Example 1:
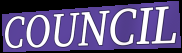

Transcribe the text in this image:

COUNCIL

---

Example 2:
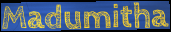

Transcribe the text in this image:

Madumitha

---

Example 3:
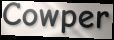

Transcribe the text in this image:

Cowper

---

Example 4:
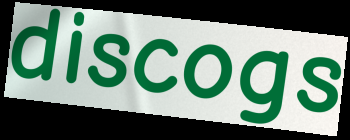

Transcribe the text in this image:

discogs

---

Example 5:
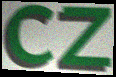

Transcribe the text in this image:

cz